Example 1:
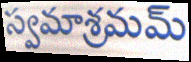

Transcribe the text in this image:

స్వమాశ్రమమ్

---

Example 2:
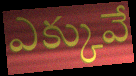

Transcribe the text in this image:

ఎక్కువే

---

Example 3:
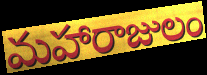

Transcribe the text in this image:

మహారాజులం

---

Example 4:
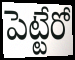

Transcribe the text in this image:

పెట్టేరో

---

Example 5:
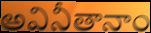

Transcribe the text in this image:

అవినీతానాం